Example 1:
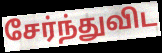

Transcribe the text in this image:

சேர்ந்துவிட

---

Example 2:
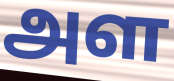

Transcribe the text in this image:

அள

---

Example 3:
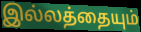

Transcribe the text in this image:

இல்லத்தையும்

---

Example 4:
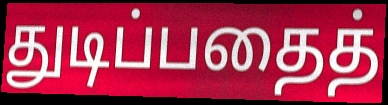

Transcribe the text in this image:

துடிப்பதைத்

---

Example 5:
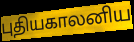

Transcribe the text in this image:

புதியகாலனிய